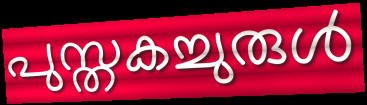
പുസ്തകച്ചുരുൾ